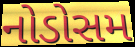
નોડોસમ